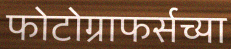
फोटोग्राफर्सच्या